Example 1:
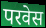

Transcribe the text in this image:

परवेस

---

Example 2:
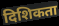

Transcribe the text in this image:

दिशिकता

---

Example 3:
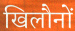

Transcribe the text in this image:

खिलौनों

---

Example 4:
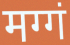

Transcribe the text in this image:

मग्गं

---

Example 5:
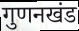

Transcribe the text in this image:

गुणनखंड